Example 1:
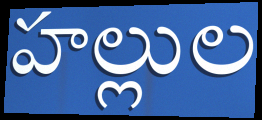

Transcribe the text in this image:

హల్లుల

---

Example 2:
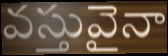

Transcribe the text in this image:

వస్తువైనా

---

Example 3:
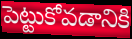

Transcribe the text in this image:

పెట్టుకోవడానికి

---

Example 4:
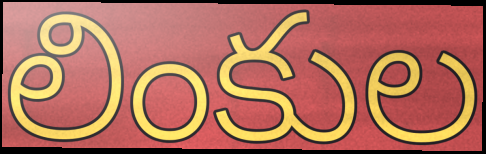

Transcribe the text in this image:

లింకుల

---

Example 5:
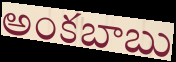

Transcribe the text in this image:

అంకబాబు